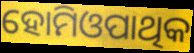
ହୋମିଓପାଥିକ